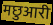
मछुआरी